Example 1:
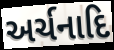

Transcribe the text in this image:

અર્ચનાદિ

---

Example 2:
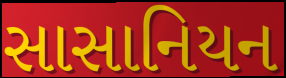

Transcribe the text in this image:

સાસાનિયન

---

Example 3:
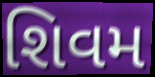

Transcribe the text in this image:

શિવમ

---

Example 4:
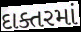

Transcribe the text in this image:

દાક્તરમાં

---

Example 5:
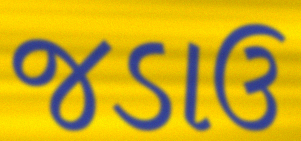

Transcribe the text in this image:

જડાઉ